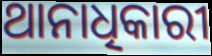
ଥାନାଧିକାରୀ